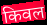
किवल